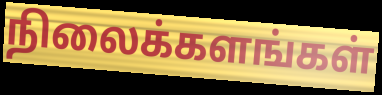
நிலைக்களங்கள்